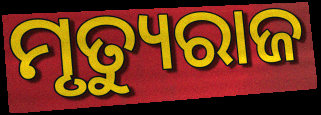
ମୃତ୍ୟୁରାଜ